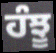
ਹੰਝੂ